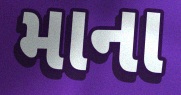
માના